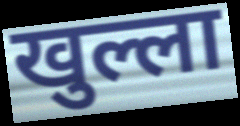
खुल्ला